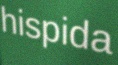
hispida